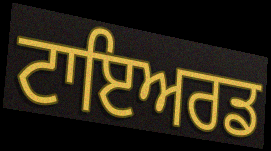
ਟਾਇਅਰਡ